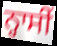
ਨ੍ਹਾਸੀਂ